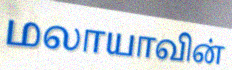
மலாயாவின்